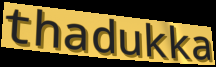
thadukka